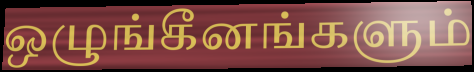
ஒழுங்கீனங்களும்